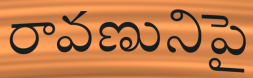
రావణునిపై